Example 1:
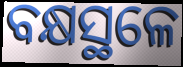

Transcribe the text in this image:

ବକ୍ଷସ୍ଥଳେ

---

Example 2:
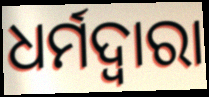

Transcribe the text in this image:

ଧର୍ମଦ୍ଵାରା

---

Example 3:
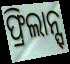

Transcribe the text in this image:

ଫ୍ରିଲାନ୍ସ୍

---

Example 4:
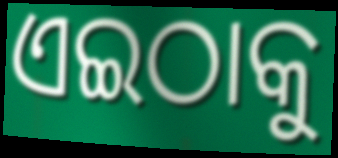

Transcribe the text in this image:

ଏଇଠାକୁ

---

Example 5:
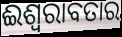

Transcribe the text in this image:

ଈଶ୍ୱରାବତାର